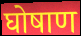
घोषाण